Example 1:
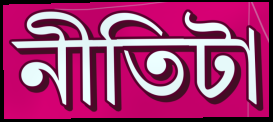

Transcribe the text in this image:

নীতিটা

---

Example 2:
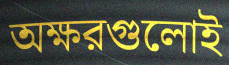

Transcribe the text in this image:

অক্ষরগুলোই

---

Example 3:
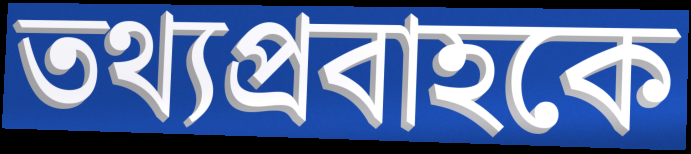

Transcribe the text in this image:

তথ্যপ্রবাহকে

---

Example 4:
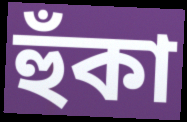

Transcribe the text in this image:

হুঁকা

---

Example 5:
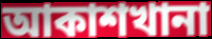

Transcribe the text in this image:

আকাশখানা